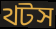
থটস